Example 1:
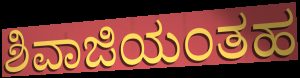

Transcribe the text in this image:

ಶಿವಾಜಿಯಂತಹ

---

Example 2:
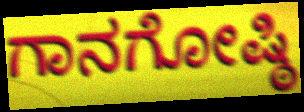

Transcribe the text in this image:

ಗಾನಗೋಷ್ಠಿ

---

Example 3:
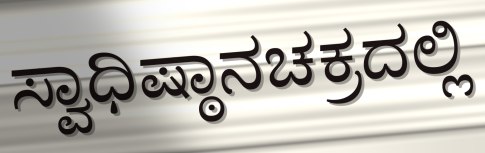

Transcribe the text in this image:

ಸ್ವಾಧಿಷ್ಠಾನಚಕ್ರದಲ್ಲಿ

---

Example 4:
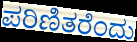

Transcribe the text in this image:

ಪರಿಣಿತರೆಂದು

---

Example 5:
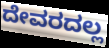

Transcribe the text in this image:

ದೇವರದಲ್ಲ